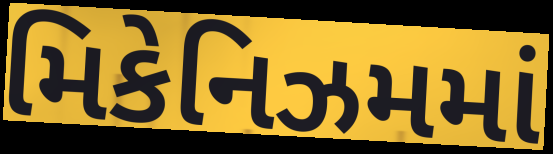
મિકેનિઝમમાં